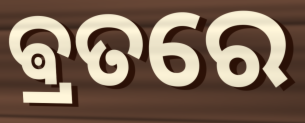
ଵ୍ରତରେ